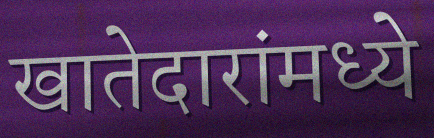
खातेदारांमध्ये